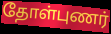
தோள்புணர்